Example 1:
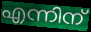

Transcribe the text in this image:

എന്നിന്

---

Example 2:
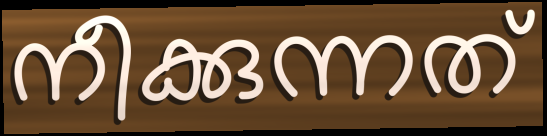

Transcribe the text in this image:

നീക്കുന്നത്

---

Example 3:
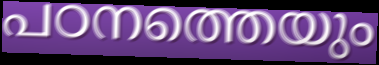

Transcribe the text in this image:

പഠനത്തെയും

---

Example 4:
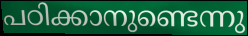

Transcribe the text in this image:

പഠിക്കാനുണ്ടെന്നു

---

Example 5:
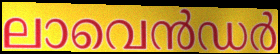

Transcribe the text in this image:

ലാവെൻഡർ